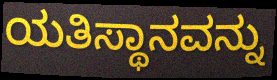
ಯತಿಸ್ಥಾನವನ್ನು